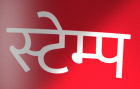
स्टेम्प